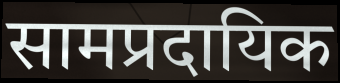
सामप्रदायिक